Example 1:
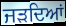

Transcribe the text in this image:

ਜੜਦਿਆਂ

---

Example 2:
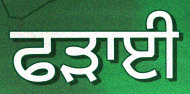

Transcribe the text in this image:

ਫੜਾਈ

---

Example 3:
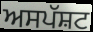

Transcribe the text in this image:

ਅਸਪੱਸ਼ਟ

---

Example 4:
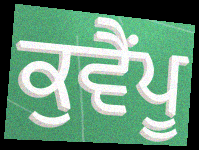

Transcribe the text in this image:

ਕੁਵੈਂਪੂ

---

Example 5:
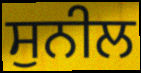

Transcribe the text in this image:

ਸੁਨੀਲ